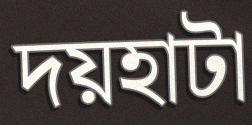
দয়হাটা